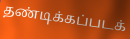
தண்டிக்கப்படக்